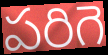
పరిగె